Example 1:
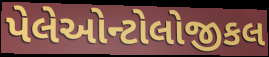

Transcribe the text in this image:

પેલેઓન્ટોલોજીકલ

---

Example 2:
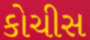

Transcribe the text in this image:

કોચીસ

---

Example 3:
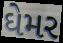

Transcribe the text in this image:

ઘેમર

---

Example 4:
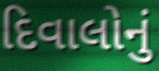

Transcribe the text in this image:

દિવાલોનું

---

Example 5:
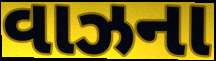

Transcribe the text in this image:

વાઝના